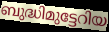
ബുദ്ധിമുട്ടേറിയ